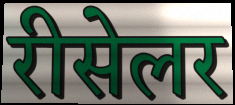
रीसेलर